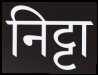
निट्टा